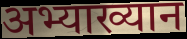
अभ्याख्यान